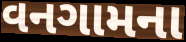
વનગામના